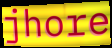
jhore